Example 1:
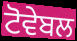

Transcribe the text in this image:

ਟੋਵੇਬਲ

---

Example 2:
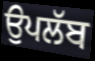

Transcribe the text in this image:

ਉਪਲੱਬ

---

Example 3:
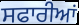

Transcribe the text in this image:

ਸਫਾਰੀਆਂ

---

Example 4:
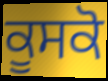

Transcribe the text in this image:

ਕੂਸਕੋ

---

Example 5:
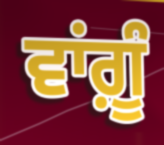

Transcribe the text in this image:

ਵਾਂਗ਼ੂੰ